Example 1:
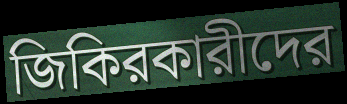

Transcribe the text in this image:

জিকিরকারীদের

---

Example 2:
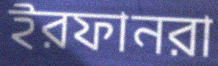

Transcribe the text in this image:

ইরফানরা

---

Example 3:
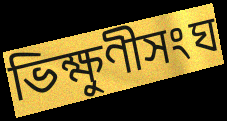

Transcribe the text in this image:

ভিক্ষুণীসংঘ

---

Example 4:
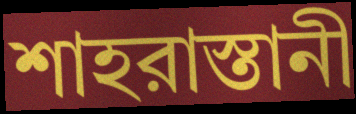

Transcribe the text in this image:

শাহরাস্তানী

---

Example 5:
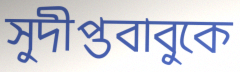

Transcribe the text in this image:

সুদীপ্তবাবুকে